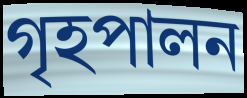
গৃহপালন